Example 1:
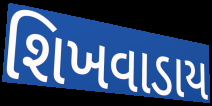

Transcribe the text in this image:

શિખવાડાય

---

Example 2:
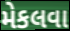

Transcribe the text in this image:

મેકલવા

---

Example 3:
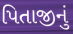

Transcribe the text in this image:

પિતાજીનું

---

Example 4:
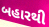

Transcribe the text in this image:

બહારથી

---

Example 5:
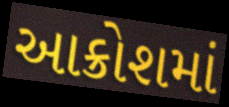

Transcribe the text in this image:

આક્રોશમાં